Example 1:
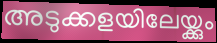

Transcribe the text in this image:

അടുക്കളയിലേയ്ക്കും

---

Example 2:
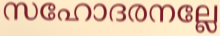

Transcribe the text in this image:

സഹോദരനല്ലേ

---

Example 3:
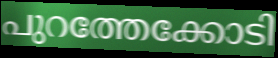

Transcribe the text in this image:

പുറത്തേക്കോടി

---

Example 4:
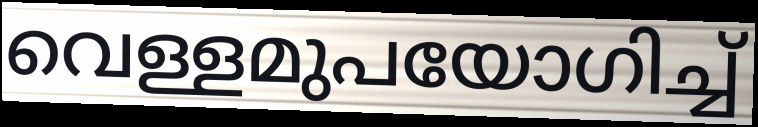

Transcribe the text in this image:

വെള്ളമുപയോഗിച്ച്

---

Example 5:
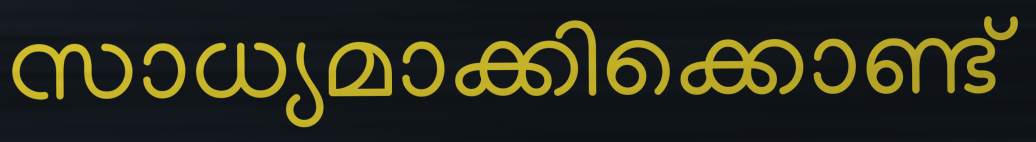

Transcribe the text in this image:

സാധ്യമാക്കിക്കൊണ്ട്